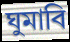
ঘুমাবি